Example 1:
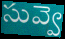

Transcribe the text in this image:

సువ్వె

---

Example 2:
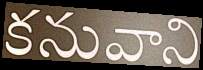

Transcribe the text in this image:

కనువాని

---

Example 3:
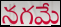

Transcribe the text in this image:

నగమే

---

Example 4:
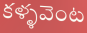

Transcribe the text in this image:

కళ్ళవెంట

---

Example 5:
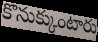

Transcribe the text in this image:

కొనుక్కుంటారు